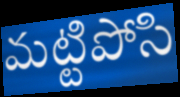
మట్టిపోసి